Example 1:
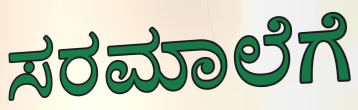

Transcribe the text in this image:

ಸರಮಾಲೆಗೆ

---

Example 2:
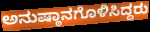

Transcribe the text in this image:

ಅನುಷ್ಠಾನಗೊಳಿಸಿದ್ದರು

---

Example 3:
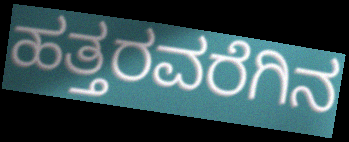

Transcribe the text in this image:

ಹತ್ತರವರೆಗಿನ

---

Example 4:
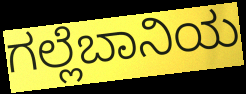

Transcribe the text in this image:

ಗಲ್ಲೆಬಾನಿಯ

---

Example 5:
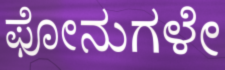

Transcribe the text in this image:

ಫೋನುಗಳೇ